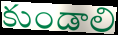
కుండాలి